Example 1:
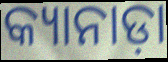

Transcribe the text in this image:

କ୍ୟାନାଡ଼ା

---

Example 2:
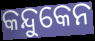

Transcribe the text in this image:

କନ୍ଦୁକେନ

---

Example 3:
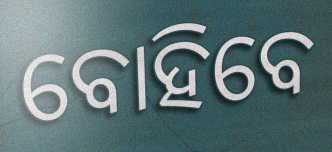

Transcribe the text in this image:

ବୋହିବେ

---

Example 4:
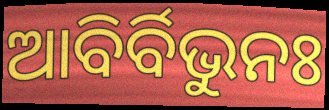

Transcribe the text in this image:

ଆବିର୍ବିଭୁନଃ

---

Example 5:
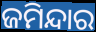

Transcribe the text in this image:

ଜମିନ୍ଦାର